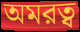
অমরত্ব